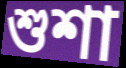
শুশা